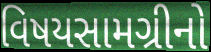
વિષયસામગ્રીનો